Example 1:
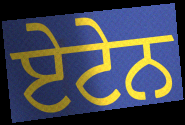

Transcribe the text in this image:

ਏਟੇਨ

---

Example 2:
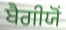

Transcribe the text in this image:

ਬੈਗੀਯੋਂ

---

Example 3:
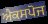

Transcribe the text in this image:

ਐਕਸਪੋਜ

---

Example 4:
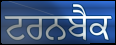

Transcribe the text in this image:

ਟਰਨਬੈਕ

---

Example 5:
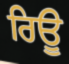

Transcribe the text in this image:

ਰਿਊ